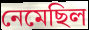
নেমেছিল